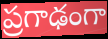
ప్రగాఢంగా